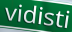
vidisti